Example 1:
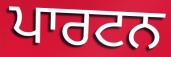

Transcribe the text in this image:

ਪਾਰਟਨ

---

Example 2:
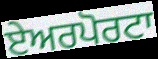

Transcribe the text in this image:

ਏਅਰਪੋਰਟਾ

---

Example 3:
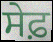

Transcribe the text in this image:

ਸੇਫ਼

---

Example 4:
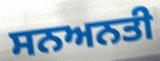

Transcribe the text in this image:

ਸਨਅਨਤੀ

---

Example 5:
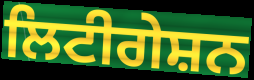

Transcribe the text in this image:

ਲਿਟੀਗੇਸ਼ਨ